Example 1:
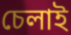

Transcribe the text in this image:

চেলাই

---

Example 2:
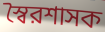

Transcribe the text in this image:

স্বৈরশাসক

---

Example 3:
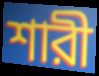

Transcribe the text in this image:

শারী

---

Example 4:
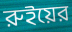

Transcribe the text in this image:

রুইয়ের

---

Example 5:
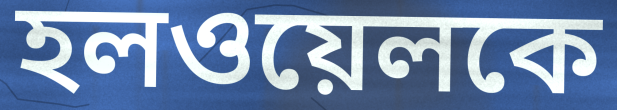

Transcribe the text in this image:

হলওয়েলকে